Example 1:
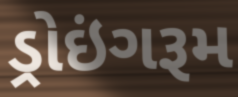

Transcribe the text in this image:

ડ્રોઇંગરૂમ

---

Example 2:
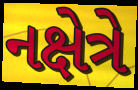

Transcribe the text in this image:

નક્ષેત્રે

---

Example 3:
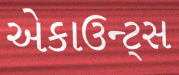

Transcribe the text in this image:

એકાઉન્ટ્સ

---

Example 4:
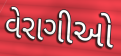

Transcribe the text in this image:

વેરાગીઓ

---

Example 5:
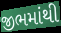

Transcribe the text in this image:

જીભમાંથી